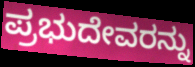
ಪ್ರಭುದೇವರನ್ನು